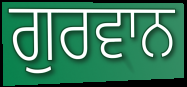
ਗੁਰਵਾਨ